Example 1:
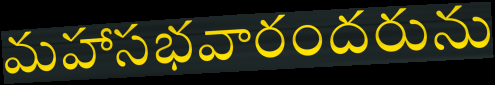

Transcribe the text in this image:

మహాసభవారందరును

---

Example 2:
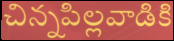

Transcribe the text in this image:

చిన్నపిల్లవాడికి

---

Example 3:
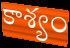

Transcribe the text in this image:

కాశ్యం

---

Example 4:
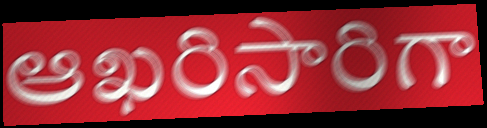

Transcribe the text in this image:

ఆఖరిసారిగా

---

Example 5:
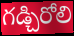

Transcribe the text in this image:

గడ్చిరోలి